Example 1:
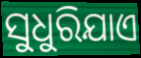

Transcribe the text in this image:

ସୁଧୁରିଯାଏ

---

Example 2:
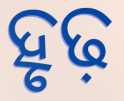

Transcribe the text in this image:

ହୃଢ଼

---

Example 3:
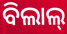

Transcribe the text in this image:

ବିଲାଲ୍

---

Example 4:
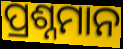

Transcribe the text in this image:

ପ୍ରଶ୍ନମାନ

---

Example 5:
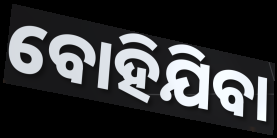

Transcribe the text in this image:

ବୋହିଯିବା